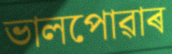
ভালপোৱাৰ